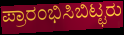
ಪ್ರಾರಂಭಿಸಿಬಿಟ್ಟರು